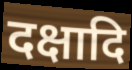
दक्षादि